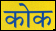
कोक